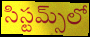
సిస్టమ్స్‌లో